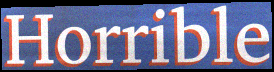
Horrible